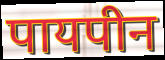
पायपीन